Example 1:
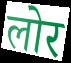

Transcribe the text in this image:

लोर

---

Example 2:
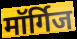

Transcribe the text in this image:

मॉर्गिज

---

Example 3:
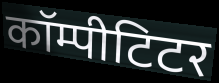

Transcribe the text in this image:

कॉम्पीटिटर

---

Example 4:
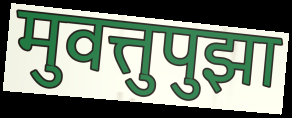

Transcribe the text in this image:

मुवत्तुपुझा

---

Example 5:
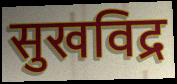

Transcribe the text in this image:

सुखविद्र